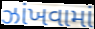
ઝાંખવામાં